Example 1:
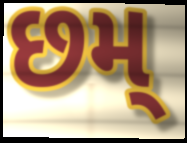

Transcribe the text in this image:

છમ્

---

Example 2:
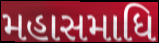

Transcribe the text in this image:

મહાસમાધિ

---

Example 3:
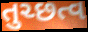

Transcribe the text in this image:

તુચ્છત્વ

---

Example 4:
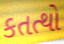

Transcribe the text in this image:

કતત્થો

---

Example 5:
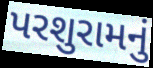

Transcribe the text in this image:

પરશુરામનું